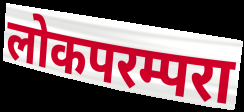
लोकपरम्परा